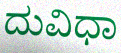
ದುವಿಧಾ